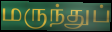
மருந்துப்